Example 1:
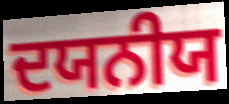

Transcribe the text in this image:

ਦਯਨੀਯ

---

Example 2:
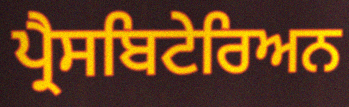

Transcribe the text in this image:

ਪ੍ਰੈਸਬਿਟੇਰਿਅਨ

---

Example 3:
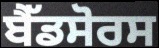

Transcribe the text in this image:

ਬੈੱਡਸੋਰਸ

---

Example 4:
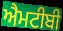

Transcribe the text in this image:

ਐਮਟੀਬੀ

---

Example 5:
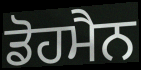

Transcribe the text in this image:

ਡੋਹਮੈਨ